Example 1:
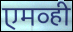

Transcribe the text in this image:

एमव्ही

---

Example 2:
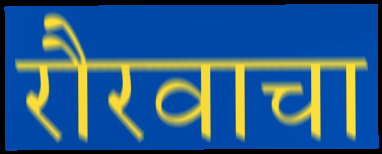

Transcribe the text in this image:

रौरवाचा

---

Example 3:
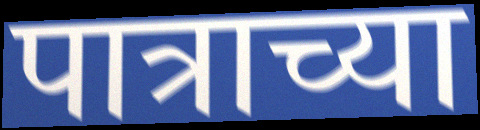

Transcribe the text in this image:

पात्राच्‍या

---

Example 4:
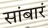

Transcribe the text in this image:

सांबारं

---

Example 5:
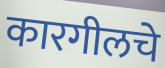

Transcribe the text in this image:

कारगीलचे